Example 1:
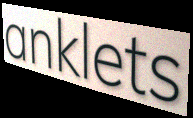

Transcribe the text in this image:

anklets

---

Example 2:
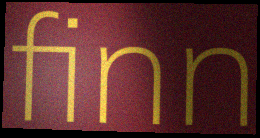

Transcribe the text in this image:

finn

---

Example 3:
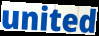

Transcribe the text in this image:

united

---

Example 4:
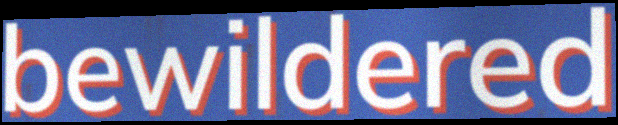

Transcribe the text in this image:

bewildered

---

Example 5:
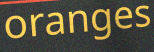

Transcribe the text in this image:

oranges